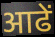
आढें